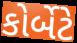
કોર્બેટે